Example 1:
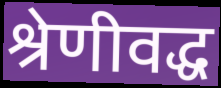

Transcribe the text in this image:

श्रेणीवद्ध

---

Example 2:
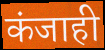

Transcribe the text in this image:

कंजाही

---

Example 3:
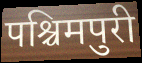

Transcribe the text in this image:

पश्चिमपुरी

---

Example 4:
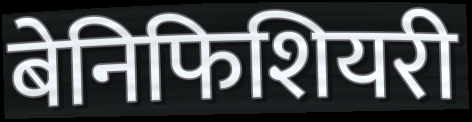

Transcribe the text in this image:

बेनिफिशियरी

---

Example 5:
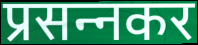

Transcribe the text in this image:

प्रसन्नकर